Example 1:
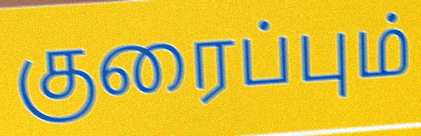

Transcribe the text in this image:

குரைப்பும்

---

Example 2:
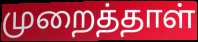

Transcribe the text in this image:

முறைத்தாள்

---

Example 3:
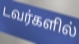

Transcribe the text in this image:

டவர்களில்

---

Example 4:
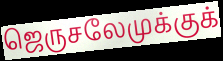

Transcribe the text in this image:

ஜெருசலேமுக்குக்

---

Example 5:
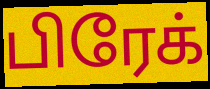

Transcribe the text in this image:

பிரேக்